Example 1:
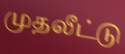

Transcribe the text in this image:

முதலீட்டு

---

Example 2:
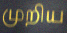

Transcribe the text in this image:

முறிய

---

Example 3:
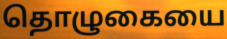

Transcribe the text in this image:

தொழுகையை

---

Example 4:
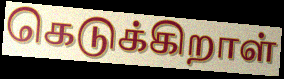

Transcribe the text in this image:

கெடுக்கிறாள்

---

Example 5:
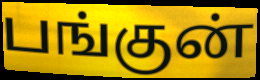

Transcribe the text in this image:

பங்குன்